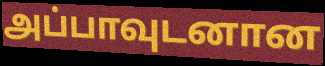
அப்பாவுடனான